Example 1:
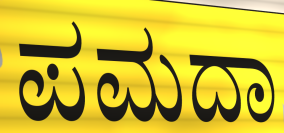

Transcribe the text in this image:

ಪಮದಾ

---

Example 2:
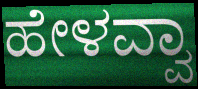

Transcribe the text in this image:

ಹೇಳವ್ವಾ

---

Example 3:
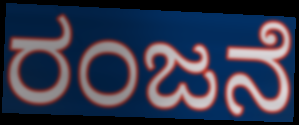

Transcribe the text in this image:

ರಂಜನೆ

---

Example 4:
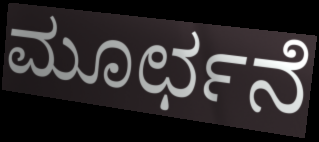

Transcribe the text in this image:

ಮೂರ್ಛನೆ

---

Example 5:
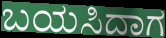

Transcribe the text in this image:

ಬಯಸಿದಾಗ